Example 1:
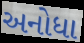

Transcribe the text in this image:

અનોધા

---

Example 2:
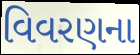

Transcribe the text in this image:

વિવરણના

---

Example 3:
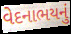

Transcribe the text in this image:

વેદનાભયનું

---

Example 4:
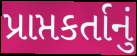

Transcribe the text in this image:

પ્રાપ્તકર્તાનું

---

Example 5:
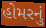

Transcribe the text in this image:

હોમરનું